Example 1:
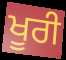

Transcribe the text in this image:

ਖੂਰੀ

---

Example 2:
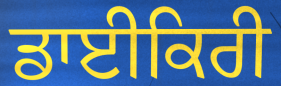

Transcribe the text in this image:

ਡਾਈਕਿਰੀ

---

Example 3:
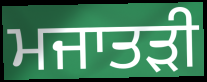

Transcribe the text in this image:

ਮਜਾਤੜੀ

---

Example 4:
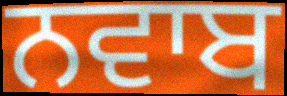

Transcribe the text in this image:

ਨਵਾਬ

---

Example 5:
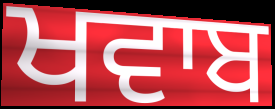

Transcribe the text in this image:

ਖਵਾਬ